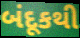
બંદૂકથી